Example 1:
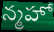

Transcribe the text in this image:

న్మహో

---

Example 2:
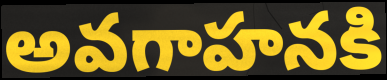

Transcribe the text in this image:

అవగాహనకి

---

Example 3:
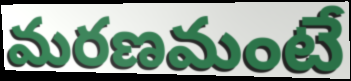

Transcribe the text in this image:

మరణమంటే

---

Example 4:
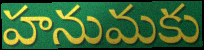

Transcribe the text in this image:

హనుమకు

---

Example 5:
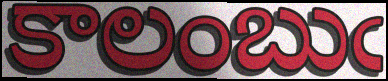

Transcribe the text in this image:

కాలంబుఁ